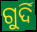
ଗୁର୍ଦି